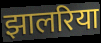
झालरिया